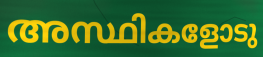
അസ്ഥികളോടു